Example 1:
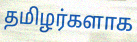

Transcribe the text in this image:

தமிழர்களாக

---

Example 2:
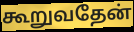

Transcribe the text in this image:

கூறுவதேன்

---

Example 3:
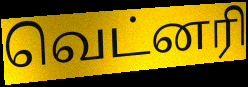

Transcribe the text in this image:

வெட்னரி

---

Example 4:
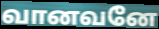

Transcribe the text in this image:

வானவனே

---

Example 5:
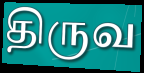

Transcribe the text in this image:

திருவ